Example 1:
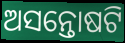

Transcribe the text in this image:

ଅସନ୍ତୋଷଟି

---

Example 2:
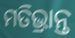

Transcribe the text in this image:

ମତିଭ୍ରାନ୍ତ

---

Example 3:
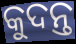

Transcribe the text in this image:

କୁଦନ୍ତ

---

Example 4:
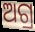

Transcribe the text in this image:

ଅଗ୍ର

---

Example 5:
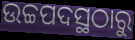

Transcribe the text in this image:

ଉଚ୍ଚପଦସ୍ଥଠାରୁ